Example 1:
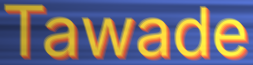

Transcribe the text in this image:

Tawade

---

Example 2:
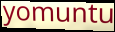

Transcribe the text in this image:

yomuntu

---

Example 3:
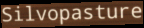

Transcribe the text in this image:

Silvopasture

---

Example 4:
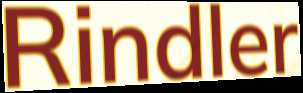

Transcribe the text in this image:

Rindler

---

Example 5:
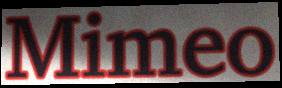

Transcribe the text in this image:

Mimeo